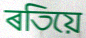
ৰতিয়ে